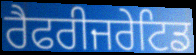
ਰੈਫਰੀਜਰੇਟਿਡ